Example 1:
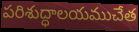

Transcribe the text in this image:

పరిశుద్ధాలయముచేత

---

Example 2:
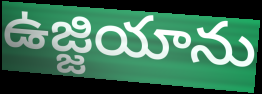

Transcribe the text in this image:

ఉజ్జియాను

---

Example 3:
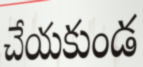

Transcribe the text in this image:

చేయకుండ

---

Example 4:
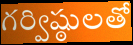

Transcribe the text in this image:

గర్విష్ఠులతో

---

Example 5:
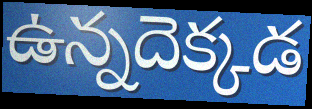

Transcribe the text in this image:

ఉన్నదెక్కడ